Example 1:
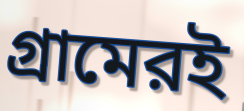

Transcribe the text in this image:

গ্রামেরই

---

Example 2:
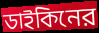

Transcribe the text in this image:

ডাইকিনের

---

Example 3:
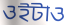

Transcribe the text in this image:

ওইটাও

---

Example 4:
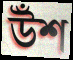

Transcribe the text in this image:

উঁশ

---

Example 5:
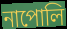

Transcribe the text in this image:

নাপোলি